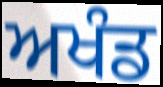
ਅਖੰਡ